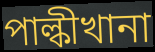
পাল্কীখানা